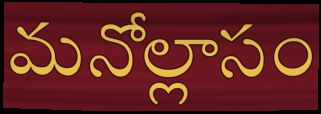
మనోల్లాసం